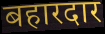
बहारदार